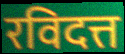
रविदत्त